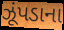
ઝૂંપડાના